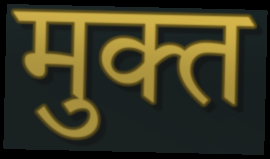
मुक्त